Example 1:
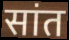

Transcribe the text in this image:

सांत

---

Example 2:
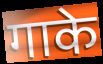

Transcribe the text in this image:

गाके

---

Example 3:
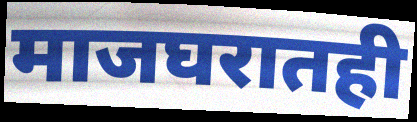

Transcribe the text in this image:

माजघरातही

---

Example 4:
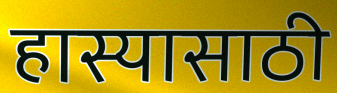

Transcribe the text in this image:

हास्यासाठी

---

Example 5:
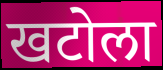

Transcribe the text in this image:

खटोला